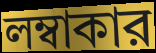
লম্বাকার